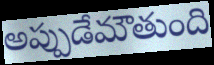
అప్పుడేమౌతుంది